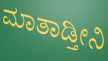
ಮಾತಾಡ್ತೀನಿ